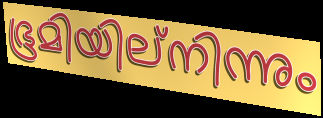
ഭൂമിയില്നിന്നും